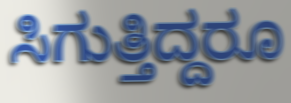
ಸಿಗುತ್ತಿದ್ದರೂ